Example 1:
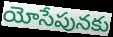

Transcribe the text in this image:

యోసేపునకు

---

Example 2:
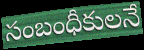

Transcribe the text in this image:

సంబంధీకులనే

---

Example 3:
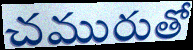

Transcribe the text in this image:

చమురుతో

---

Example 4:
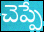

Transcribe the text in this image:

చెప్పే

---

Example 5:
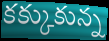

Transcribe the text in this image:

కక్కుకున్న